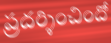
ప్రదర్శించిందో